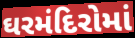
ઘરમંદિરોમાં